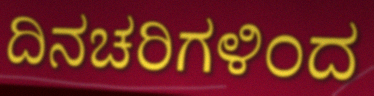
ದಿನಚರಿಗಳಿಂದ